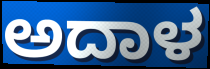
ಅದಾಳ